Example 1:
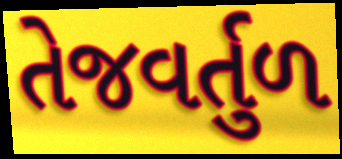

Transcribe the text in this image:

તેજવર્તુળ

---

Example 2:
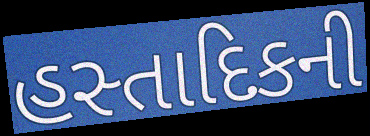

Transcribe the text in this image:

હસ્તાદિકની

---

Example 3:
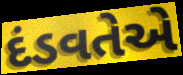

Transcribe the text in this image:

દંડવતેએ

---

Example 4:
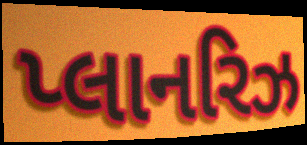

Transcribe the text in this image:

પ્લાનરિઝ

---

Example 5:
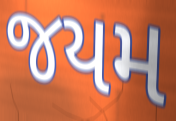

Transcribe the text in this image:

જયમ